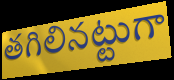
తగిలినట్టుగా